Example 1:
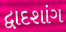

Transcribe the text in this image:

દ્વાદશાંગ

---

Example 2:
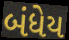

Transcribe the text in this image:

બંધેય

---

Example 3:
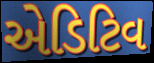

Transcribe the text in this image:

એડિટિવ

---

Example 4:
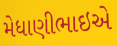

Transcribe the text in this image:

મેધાણીભાઇએ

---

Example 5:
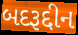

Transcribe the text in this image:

બદરૂદ્દીન